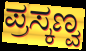
ಪ್ರಸ್ಕಣ್ವ